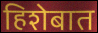
हिशेबात